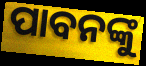
ପାବନଙ୍କୁ